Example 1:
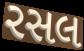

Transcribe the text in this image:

રસલ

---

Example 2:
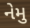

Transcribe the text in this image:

નેમુ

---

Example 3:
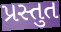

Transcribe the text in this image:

પ્રસ્તુત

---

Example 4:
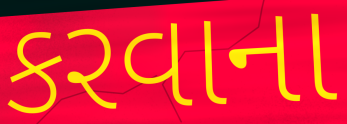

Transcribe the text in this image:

કરવાના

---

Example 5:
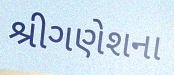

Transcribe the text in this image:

શ્રીગણેશના